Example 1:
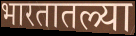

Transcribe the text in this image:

भारतातल्या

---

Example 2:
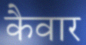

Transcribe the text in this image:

कैवार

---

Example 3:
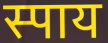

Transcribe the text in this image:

स्पाय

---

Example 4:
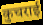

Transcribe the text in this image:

कुचराई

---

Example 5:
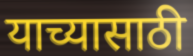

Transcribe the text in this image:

याच्यासाठी